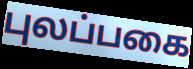
புலப்பகை